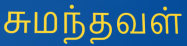
சுமந்தவள்